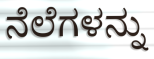
ನೆಲೆಗಳನ್ನು